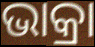
ଭାକ୍ରା